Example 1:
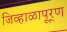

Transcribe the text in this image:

जिव्हाळापूर्ण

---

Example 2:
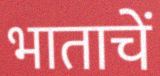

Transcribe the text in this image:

भाताचें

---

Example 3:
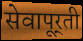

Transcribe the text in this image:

सेवापूर्ती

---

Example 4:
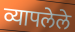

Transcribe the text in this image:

व्यापलेले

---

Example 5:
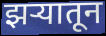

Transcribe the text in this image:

झऱ्यातून